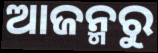
ଆଜନ୍ମରୁ